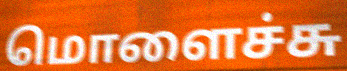
மொளைச்சு